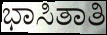
ಭಾಸಿತಾತಿ